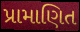
પ્રામાણિત